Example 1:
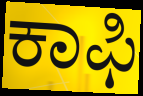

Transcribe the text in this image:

ಕಾಫಿ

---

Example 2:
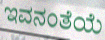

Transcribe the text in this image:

ಇವನಂತೆಯೆ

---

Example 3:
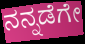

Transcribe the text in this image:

ನನ್ನಡೆಗೇ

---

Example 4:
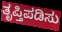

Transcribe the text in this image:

ತೃಪ್ತಿಪಡಿಸು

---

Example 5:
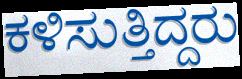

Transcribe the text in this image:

ಕಳಿಸುತ್ತಿದ್ದರು